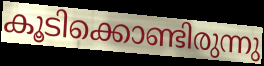
കൂടിക്കൊണ്ടിരുന്നു